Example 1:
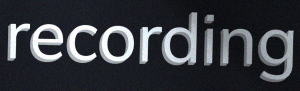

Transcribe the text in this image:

recording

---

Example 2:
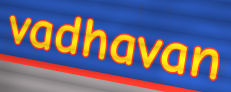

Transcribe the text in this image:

vadhavan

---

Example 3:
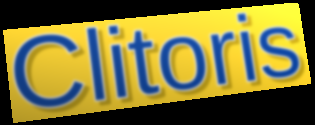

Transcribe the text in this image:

Clitoris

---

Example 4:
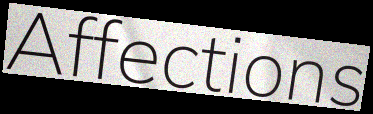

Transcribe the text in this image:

Affections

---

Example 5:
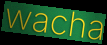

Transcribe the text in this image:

wacha